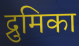
द्रुमिका